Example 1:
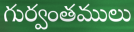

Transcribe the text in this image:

గుర్వంతములు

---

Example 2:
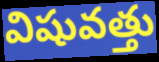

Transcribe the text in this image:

విషువత్తు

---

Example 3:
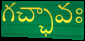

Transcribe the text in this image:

గచ్ఛావః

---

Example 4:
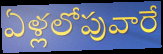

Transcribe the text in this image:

ఏళ్లలోపువారే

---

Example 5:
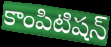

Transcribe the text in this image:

కాంపిటిషన్